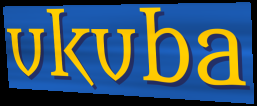
ukuba